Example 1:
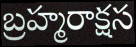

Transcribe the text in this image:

బ్రహ్మరాక్షస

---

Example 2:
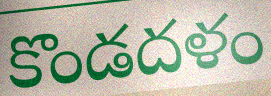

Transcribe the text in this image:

కొండదళం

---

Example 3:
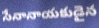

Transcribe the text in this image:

సేనానాయకుడైన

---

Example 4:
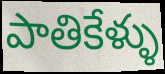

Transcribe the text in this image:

పాతికేళ్ళు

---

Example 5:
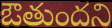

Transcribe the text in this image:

ఔతుందని